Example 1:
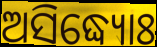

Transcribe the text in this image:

ଅସିଦ୍ଧ୍ୟୋଃ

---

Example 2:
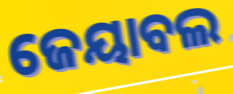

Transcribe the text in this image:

ଜେୟାବଲ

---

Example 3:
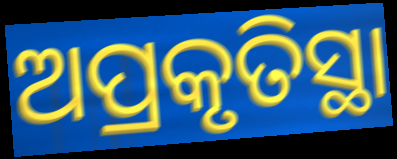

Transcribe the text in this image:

ଅପ୍ରକୃତିସ୍ଥା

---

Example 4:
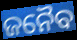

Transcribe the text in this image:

ଜନୈବ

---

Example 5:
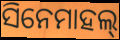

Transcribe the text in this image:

ସିନେମାହଲ୍